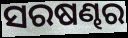
ସରଷଣ୍ଢର